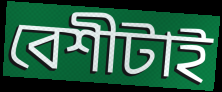
বেশীটাই